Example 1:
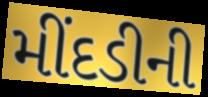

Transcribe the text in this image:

મીંદડીની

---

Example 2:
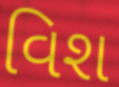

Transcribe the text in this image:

વિશ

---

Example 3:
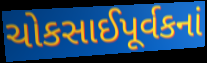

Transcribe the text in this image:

ચોકસાઈપૂર્વકનાં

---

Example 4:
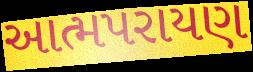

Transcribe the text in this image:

આત્મપરાયણ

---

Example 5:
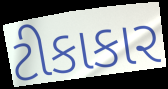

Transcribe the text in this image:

ટીકાકાર